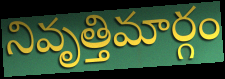
నివృత్తిమార్గం